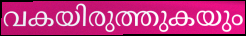
വകയിരുത്തുകയും